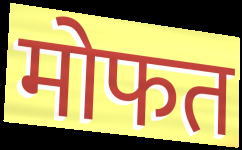
मोफत